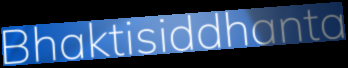
Bhaktisiddhanta